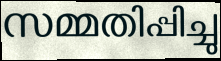
സമ്മതിപ്പിച്ചു